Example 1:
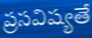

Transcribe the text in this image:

ప్రసవిష్యతే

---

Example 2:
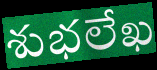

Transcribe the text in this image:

శుభలేఖ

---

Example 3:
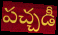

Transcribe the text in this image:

పచ్చడీ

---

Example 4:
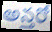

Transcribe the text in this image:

అన్తరో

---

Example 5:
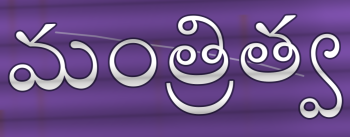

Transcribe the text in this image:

మంత్రిత్వ